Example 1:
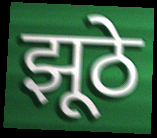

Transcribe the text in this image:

झूठे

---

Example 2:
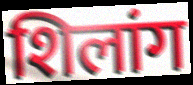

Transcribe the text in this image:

शिलांग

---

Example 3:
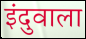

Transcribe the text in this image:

इंदुवाला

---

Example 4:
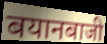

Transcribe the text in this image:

बयानबाजी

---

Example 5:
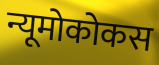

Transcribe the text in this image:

न्यूमोकोकस